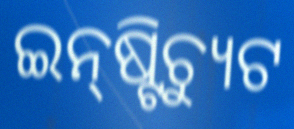
ଇନ୍‍ଷ୍ଟିଚ୍ୟୁଟ